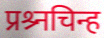
प्रश्र्नचिन्ह